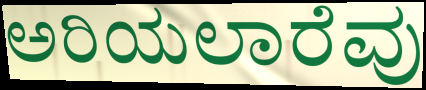
ಅರಿಯಲಾರೆವು